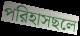
পরিহাসছলে